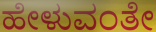
ಹೇಳುವಂತೇ